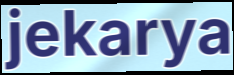
jekarya